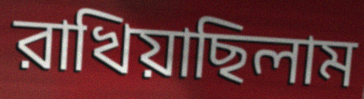
রাখিয়াছিলাম